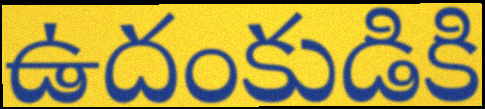
ఉదంకుడికి